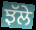
ਝੱਲੇ